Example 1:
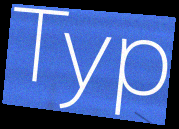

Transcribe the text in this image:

Typ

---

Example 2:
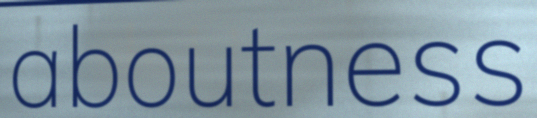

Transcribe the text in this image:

aboutness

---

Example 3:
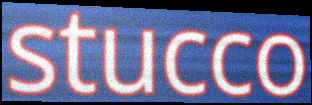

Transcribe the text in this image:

stucco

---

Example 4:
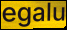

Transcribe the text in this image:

egalu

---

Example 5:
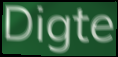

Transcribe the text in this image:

Digte